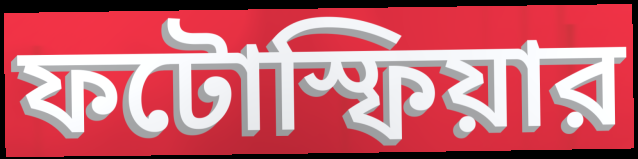
ফটোস্ফিয়ার